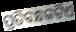
ପ୍ରତିବନ୍ଧକଟିଏ